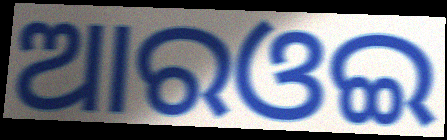
ଆରଓଇ